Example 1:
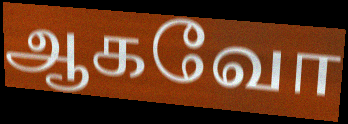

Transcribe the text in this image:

ஆகவோ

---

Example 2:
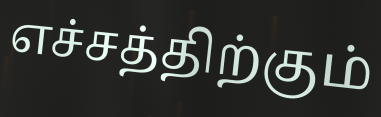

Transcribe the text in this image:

எச்சத்திற்கும்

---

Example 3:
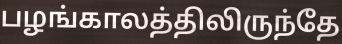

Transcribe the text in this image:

பழங்காலத்திலிருந்தே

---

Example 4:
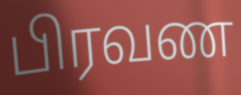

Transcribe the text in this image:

பிரவண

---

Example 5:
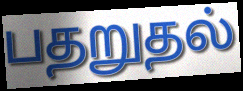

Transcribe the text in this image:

பதறுதல்